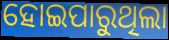
ହୋଇପାରୁଥିଲା